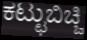
ಕಟ್ಟುಬಿಚ್ಚಿ